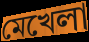
মেখেলা